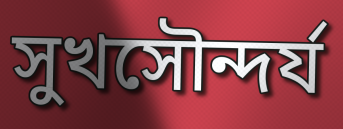
সুখসৌন্দর্য